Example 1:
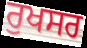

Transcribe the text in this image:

ਰੁਖਸਰ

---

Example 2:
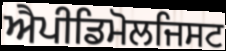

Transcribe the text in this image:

ਐਪੀਡਿਮੋਲਜਿਸਟ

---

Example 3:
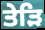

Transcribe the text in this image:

ਤੇੜਿ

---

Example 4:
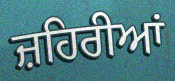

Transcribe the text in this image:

ਜ਼ਹਿਰੀਆਂ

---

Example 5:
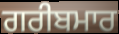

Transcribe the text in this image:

ਗਰੀਬਮਾਰ